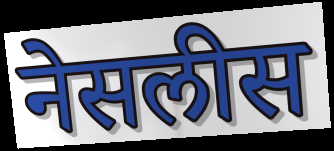
नेसलीस